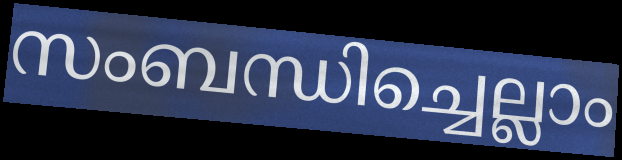
സംബന്ധിച്ചെല്ലാം